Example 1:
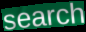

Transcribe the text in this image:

search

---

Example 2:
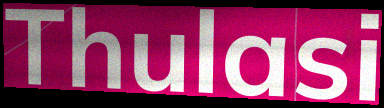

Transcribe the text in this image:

Thulasi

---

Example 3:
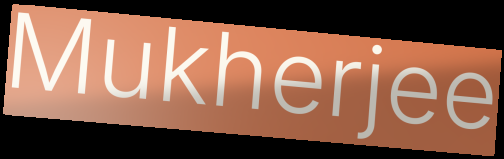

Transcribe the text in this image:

Mukherjee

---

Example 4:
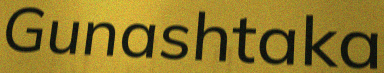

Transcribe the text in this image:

Gunashtaka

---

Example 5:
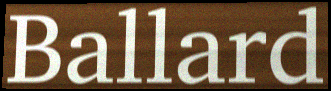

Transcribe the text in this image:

Ballard